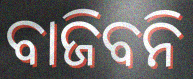
ବାଜିବନି